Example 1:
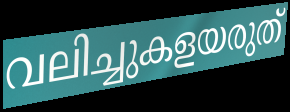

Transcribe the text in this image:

വലിച്ചുകളയരുത്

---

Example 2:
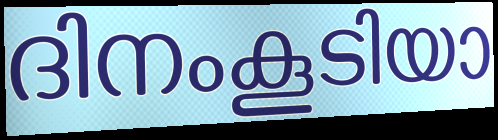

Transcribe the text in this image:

ദിനംകൂടിയാ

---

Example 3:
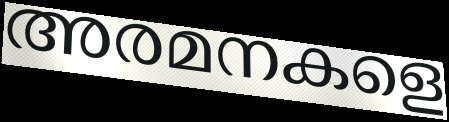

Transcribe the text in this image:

അരമനകളെ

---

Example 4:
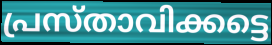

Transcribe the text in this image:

പ്രസ്താവിക്കട്ടെ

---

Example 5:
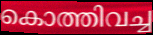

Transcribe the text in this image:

കൊത്തിവച്ച